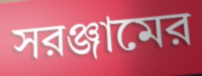
সরঞ্জামের